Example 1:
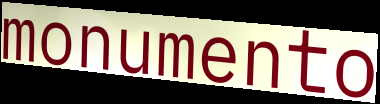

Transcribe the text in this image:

monumento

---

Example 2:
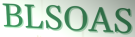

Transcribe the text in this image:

BLSOAS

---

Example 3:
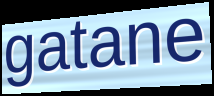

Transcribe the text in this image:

gatane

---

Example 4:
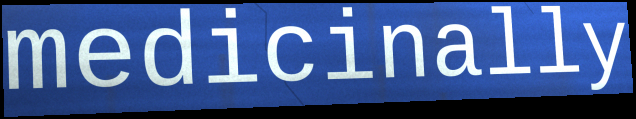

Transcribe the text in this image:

medicinally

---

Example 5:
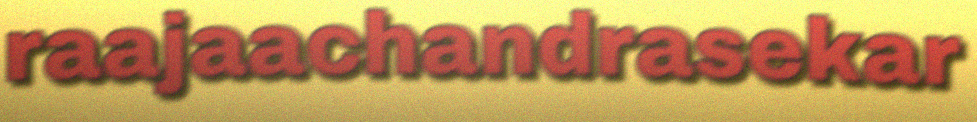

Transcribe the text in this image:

raajaachandrasekar